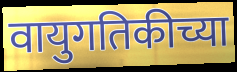
वायुगतिकीच्या